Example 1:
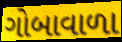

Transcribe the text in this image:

ગોબાવાળા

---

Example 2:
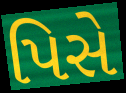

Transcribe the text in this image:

પિસે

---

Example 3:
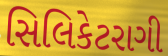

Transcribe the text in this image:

સિલિકેટરાગી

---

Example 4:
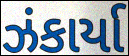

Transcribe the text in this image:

ઝંકાર્યા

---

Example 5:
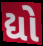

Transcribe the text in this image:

દ્યો